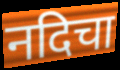
नदिचा